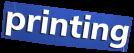
printing